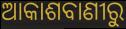
ଆକାଶବାଣୀରୁ